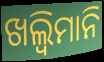
ଖଲ୍ୱିମାନି